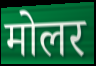
मोलर